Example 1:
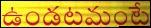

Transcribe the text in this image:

ఉండటమంటే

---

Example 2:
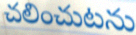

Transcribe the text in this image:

చలించుటను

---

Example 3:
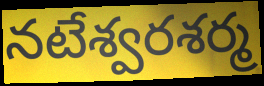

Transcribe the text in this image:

నటేశ్వరశర్మ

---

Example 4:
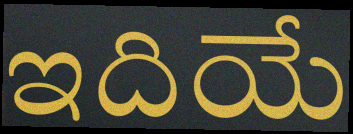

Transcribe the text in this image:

ఇదియే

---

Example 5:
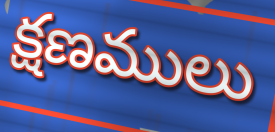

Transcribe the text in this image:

క్షణములు